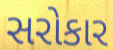
સરોકાર